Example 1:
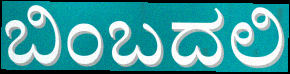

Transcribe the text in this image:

ಬಿಂಬದಲಿ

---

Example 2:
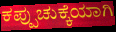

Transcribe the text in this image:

ಕಪ್ಪುಚುಕ್ಕೆಯಾಗಿ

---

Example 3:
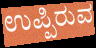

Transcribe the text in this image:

ಉಪ್ಪಿರುವ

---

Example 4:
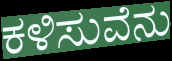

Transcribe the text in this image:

ಕಳಿಸುವೆನು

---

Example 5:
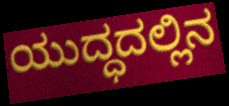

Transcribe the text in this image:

ಯುದ್ಧದಲ್ಲಿನ